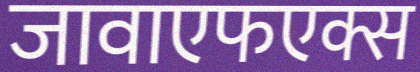
जावाएफएक्स